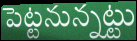
పెట్టనున్నట్టు